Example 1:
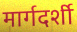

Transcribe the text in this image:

मार्गदर्शी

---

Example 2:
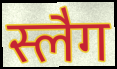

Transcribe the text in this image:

स्लैग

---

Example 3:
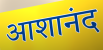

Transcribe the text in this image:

आशानंद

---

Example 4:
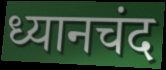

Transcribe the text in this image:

ध्यानचंद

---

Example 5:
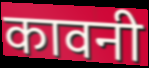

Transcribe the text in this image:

कावनी